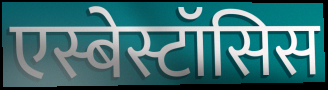
एस्बेस्टॉसिस